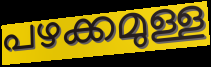
പഴക്കമുള്ള